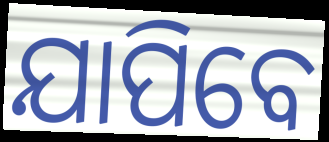
ଯାପିବେ